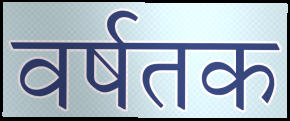
वर्षतक